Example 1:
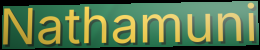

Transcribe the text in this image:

Nathamuni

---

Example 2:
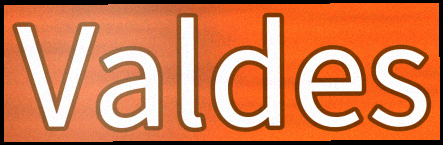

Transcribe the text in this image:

Valdes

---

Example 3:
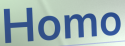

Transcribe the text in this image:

Homo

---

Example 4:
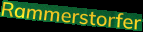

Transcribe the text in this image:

Rammerstorfer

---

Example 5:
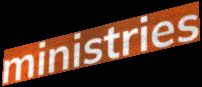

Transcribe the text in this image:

ministries